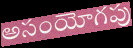
అసంయోగపు